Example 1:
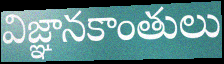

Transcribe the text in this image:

విజ్ఞానకాంతులు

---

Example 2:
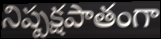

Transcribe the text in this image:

నిష్పక్షపాతంగా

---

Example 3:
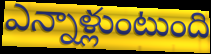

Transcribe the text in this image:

ఎన్నాళ్లుంటుంది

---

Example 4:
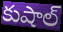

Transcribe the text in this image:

కుషాల్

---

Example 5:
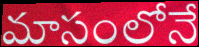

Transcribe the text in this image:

మాసంలోనే